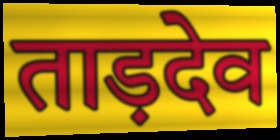
ताड़देव